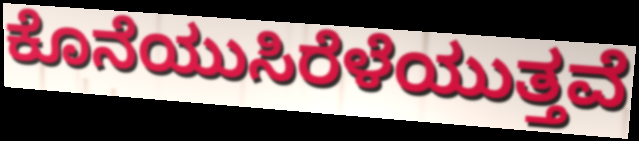
ಕೊನೆಯುಸಿರೆಳೆಯುತ್ತವೆ